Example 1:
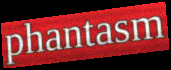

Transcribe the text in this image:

phantasm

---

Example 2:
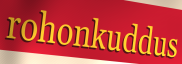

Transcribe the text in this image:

rohonkuddus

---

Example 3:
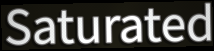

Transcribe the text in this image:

Saturated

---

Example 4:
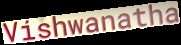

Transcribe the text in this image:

Vishwanatha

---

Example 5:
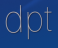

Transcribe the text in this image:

dpt